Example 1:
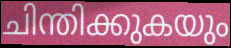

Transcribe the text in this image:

ചിന്തിക്കുകയും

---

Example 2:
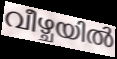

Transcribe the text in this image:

വീഴ്ചയിൽ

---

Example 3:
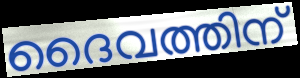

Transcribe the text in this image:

ദൈവത്തിന്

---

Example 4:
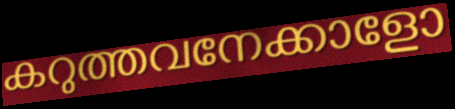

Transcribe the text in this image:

കറുത്തവനേക്കാളോ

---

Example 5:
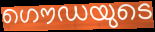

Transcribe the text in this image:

ഗൌഡയുടെ